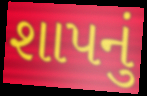
શાપનું